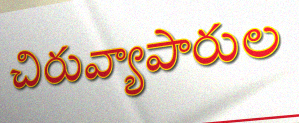
చిరువ్యాపారుల